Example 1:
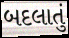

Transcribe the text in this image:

બદલાતું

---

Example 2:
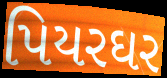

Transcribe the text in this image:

પિયરઘર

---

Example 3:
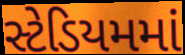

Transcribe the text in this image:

સ્ટેડિયમમાં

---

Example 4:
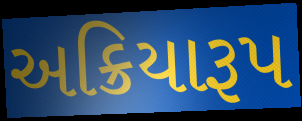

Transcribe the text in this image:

અક્રિયારૂપ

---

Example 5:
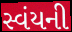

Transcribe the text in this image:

સ્વંયની